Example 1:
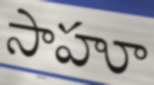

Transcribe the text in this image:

సాహూ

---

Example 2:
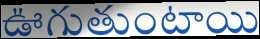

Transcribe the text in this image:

ఊగుతుంటాయి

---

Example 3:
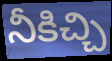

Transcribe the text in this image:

నీకిచ్చి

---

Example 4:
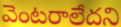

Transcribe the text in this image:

వెంటరాలేదని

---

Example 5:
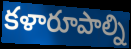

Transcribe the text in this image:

కళారూపాల్ని